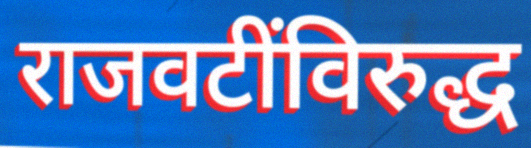
राजवटींविरुद्ध